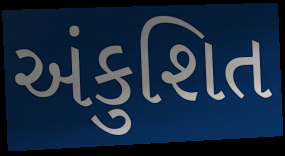
અંકુશિત